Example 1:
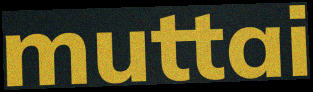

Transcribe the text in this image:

muttai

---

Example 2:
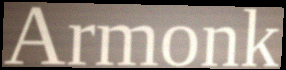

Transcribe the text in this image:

Armonk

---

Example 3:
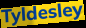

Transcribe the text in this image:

Tyldesley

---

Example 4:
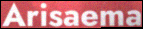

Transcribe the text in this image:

Arisaema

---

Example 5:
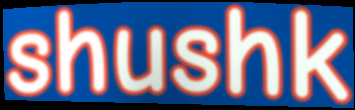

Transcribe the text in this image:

shushk